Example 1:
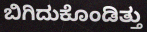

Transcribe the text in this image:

ಬಿಗಿದುಕೊಂಡಿತ್ತು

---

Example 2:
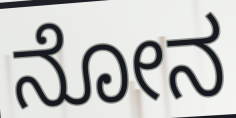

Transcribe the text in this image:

ನೋನ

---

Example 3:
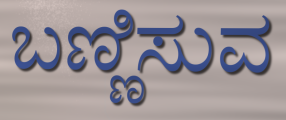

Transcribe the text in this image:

ಬಣ್ಣಿಸುವ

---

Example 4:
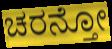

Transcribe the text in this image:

ಚರನ್ತೋ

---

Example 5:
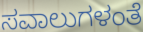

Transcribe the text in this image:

ಸವಾಲುಗಳಂತೆ